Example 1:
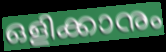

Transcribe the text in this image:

ഒളിക്കാനും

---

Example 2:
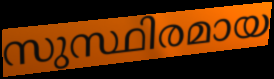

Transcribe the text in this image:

സുസ്ഥിരമായ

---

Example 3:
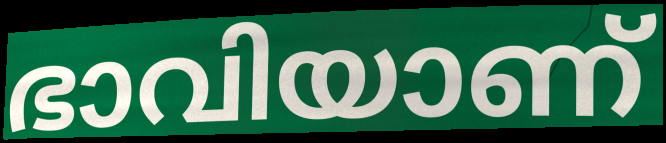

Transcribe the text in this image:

ഭാവിയാണ്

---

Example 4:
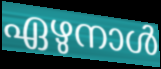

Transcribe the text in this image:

ഏഴുനാൾ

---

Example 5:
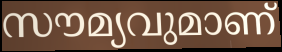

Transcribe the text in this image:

സൗമ്യവുമാണ്